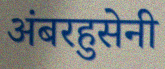
अंबरहुसेनी